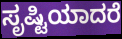
ಸೃಷ್ಟಿಯಾದರೆ